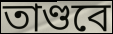
তাণ্ডবে